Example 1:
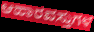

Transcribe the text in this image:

ಆಹಾರವಸ್ತುಗಳ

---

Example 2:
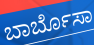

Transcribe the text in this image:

ಬಾರ್ಬೊಸಾ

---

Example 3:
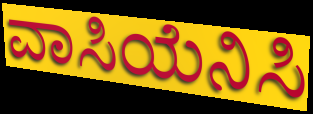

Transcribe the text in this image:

ವಾಸಿಯೆನಿಸಿ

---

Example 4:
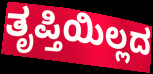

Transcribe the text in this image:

ತೃಪ್ತಿಯಿಲ್ಲದ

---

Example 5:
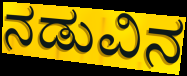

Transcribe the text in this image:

ನಡುವಿನ